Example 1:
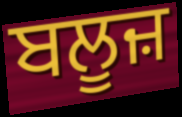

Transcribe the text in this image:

ਬਲੂਜ਼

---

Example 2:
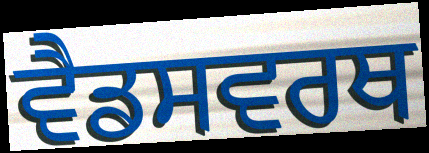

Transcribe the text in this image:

ਵੈਡਸਵਰਥ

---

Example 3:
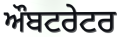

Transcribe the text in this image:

ਔਬਟਰੇਟਰ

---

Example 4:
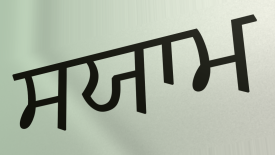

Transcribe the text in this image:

ਸਯਾਮ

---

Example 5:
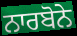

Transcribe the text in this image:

ਨਾਰਬੋਨੇ